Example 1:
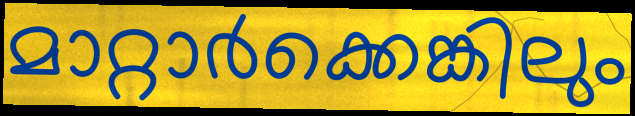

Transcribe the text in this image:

മാറ്റാർക്കെങ്കിലും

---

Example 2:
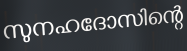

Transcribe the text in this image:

സുനഹദോസിന്റെ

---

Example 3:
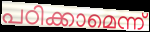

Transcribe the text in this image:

പഠിക്കാമെന്ന്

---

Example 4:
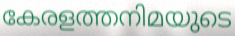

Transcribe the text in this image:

കേരളത്തനിമയുടെ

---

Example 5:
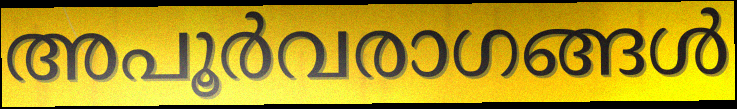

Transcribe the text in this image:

അപൂർവരാഗങ്ങൾ